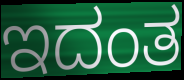
ಇದಂತ